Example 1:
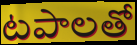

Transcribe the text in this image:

టపాలతో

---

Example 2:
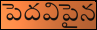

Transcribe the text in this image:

పెదవిపైన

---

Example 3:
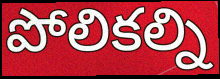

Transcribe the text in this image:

పోలికల్ని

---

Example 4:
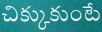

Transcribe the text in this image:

చిక్కుకుంటే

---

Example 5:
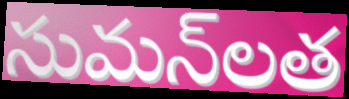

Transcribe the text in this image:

సుమన్‌లత